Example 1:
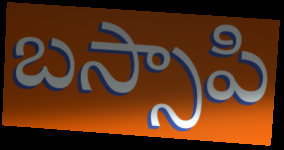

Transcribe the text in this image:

బస్సాపి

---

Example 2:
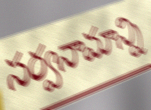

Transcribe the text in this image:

సర్వనామాన్ని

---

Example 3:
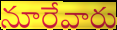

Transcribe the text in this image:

నూరేవారు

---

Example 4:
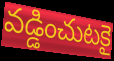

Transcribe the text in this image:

వడ్డించుటకై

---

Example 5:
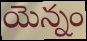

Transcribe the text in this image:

యెన్నం